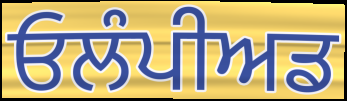
ਓਲੰਪੀਅਡ